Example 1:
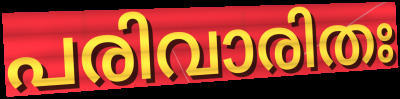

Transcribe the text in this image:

പരിവാരിതഃ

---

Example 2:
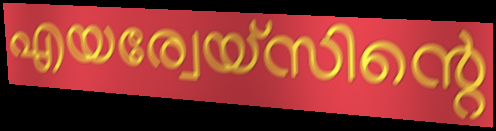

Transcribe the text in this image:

എയര്വേയ്സിന്റെ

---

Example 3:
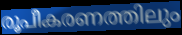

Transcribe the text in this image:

രൂപീകരണത്തിലും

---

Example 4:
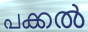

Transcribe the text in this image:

പക്കൽ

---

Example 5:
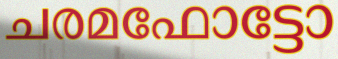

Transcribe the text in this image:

ചരമഫോട്ടോ